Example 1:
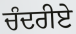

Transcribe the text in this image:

ਚੰਦਰੀਏ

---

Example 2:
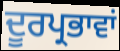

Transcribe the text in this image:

ਦੂਰਪ੍ਰਭਾਵਾਂ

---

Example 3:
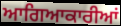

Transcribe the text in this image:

ਆਗਿਆਕਾਰੀਆਂ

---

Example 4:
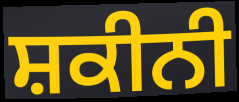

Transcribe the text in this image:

ਸ਼ਕੀਨੀ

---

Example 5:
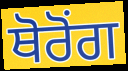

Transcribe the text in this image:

ਥੋਰੋਂਗ